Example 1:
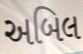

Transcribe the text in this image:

અબિલ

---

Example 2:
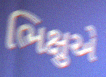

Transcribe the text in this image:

ભિક્ષુએ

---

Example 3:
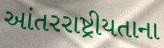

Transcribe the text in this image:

આંતરરાષ્ટ્રીયતાના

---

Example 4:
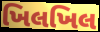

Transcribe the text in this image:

ખિલખિલ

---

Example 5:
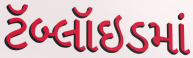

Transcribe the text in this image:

ટૅબ્લૉઇડમાં